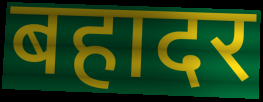
बहादर